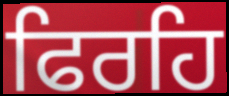
ਫਿਰਹਿ